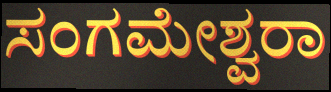
ಸಂಗಮೇಶ್ವರಾ